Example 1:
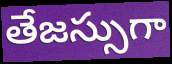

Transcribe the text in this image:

తేజస్సుగా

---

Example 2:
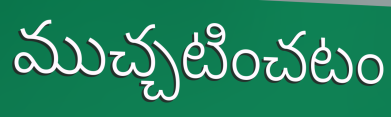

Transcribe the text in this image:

ముచ్చటించటం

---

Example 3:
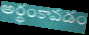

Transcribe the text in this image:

అర్థంకావడం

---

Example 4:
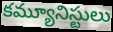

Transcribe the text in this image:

కమ్యూనిస్టులు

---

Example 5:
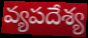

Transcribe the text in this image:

వ్యపదేశ్య